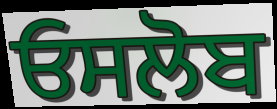
ਓਸਲੋਬ